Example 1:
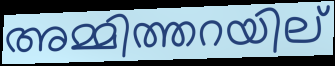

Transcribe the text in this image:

അമ്മിത്തറയില്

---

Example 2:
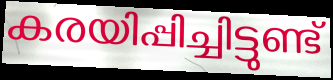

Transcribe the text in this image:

കരയിപ്പിച്ചിട്ടുണ്ട്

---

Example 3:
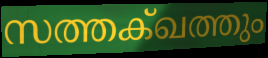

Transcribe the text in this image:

സത്തക്ഖത്തും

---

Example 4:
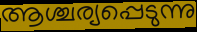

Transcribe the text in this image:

ആശ്ചര്യപ്പെടുന്നു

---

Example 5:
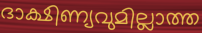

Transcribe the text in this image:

ദാക്ഷിണ്യവുമില്ലാത്ത